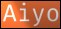
Aiyo